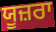
ਯੂਜ਼ਰਾ